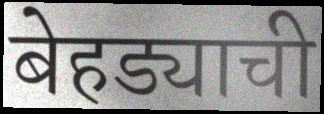
बेहड्याची